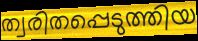
ത്വരിതപ്പെടുത്തിയ